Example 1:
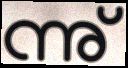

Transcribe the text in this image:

ന്നു്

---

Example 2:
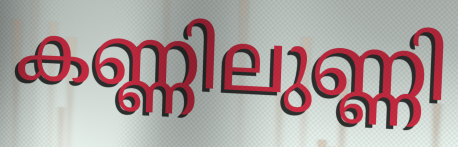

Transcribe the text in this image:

കണ്ണിലുണ്ണി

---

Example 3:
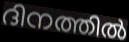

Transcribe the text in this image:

ദിനത്തിൽ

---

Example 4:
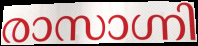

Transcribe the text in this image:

രാസാഗ്നി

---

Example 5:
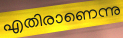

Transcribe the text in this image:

എതിരാണെന്നു